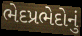
ભેદપ્રભેદોનું